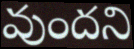
వుందని